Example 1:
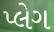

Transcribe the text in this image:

પ્લેગ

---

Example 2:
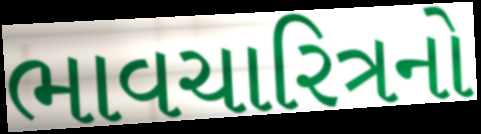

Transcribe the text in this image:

ભાવચારિત્રનો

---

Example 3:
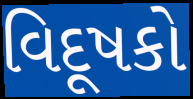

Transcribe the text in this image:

વિદૂષકો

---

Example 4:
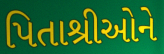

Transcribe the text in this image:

પિતાશ્રીઓને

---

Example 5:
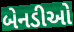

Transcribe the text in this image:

બેનડીઓ